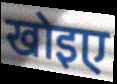
खोइए